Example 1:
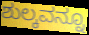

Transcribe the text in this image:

ಶುಲ್ಕವನ್ನೂ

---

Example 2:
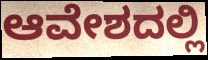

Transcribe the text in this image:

ಆವೇಶದಲ್ಲಿ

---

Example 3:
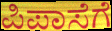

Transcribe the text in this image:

ಪಿಪಾಸೆಗೆ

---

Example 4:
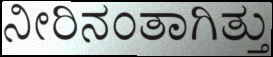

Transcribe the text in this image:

ನೀರಿನಂತಾಗಿತ್ತು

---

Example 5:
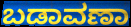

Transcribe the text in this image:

ಬಡಾವಣಾ